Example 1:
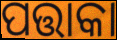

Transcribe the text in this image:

ପତ୍ତାକା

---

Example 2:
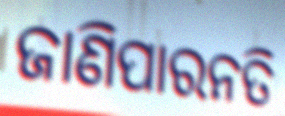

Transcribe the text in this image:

ଜାଣିପାରନତି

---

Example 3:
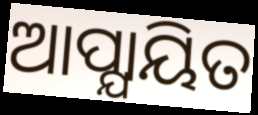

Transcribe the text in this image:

ଆପ୍ଯାୟିତ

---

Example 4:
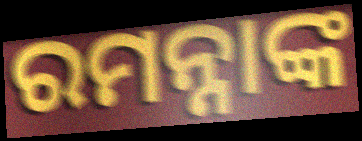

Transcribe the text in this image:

ରମନ୍ନାଙ୍କ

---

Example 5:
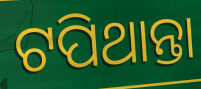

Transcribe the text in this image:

ଟପିଥାନ୍ତା